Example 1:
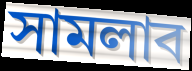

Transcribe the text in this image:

সামলাব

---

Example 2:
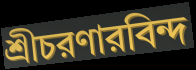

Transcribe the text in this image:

শ্রীচরণারবিন্দ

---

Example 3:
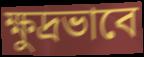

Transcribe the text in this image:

ক্ষুদ্রভাবে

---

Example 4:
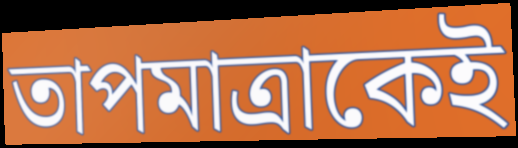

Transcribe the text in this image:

তাপমাত্রাকেই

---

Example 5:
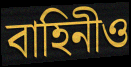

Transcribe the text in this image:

বাহিনীও